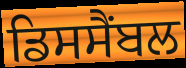
ਡਿਸਸੈਂਬਲ